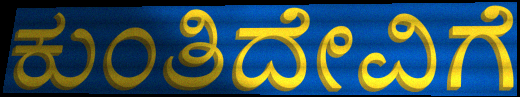
ಕುಂತಿದೇವಿಗೆ